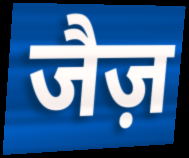
जैज़